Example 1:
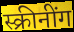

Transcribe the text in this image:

स्क्रीनींग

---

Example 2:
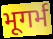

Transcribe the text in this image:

भूगर्भ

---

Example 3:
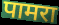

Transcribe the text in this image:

पामरा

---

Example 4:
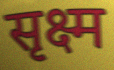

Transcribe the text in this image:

सृक्ष्म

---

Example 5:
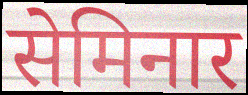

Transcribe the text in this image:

सेमिनार